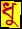
ধু